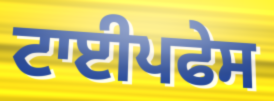
ਟਾਈਪਫੇਸ